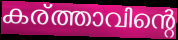
കര്ത്താവിന്റെ